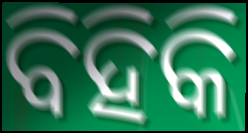
ବିହିକି